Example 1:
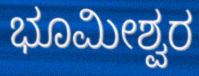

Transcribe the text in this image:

ಭೂಮೀಶ್ವರ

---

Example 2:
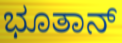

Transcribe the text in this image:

ಭೂತಾನ್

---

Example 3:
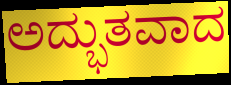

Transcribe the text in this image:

ಅದ್ಭುತವಾದ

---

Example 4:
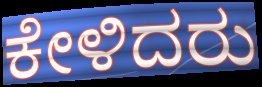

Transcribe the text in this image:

ಕೇಳಿದರು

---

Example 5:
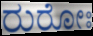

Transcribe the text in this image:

ರುರೋಃ